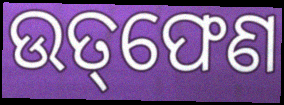
ଉତ୍‌ଫେଣ